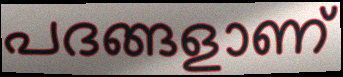
പദങ്ങളാണ്